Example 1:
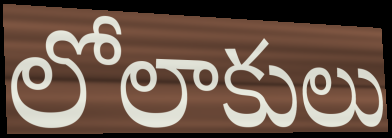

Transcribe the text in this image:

లోలాకులు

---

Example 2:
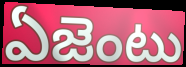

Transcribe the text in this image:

ఏజెంటు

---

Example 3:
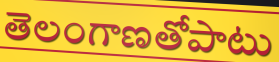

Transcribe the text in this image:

తెలంగాణతోపాటు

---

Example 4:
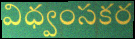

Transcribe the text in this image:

విధ్వంసకర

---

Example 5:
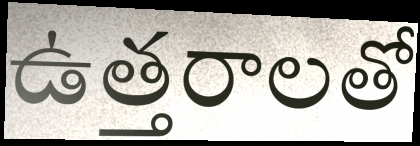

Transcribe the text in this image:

ఉత్తరాలతో